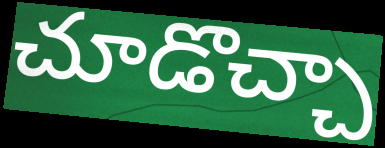
చూడొచ్చా